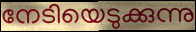
നേടിയെടുക്കുന്നു